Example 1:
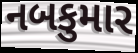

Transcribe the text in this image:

નબકુમાર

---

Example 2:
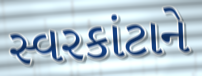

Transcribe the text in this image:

સ્વરકાંટાને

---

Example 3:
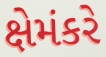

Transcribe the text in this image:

ક્ષેમંકરે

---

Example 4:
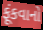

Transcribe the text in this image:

ફૂંકવાનો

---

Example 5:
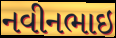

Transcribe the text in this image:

નવીનભાઇ